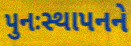
પુનઃસ્થાપનને